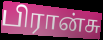
பிரான்சு